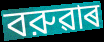
বৰুৱাৰ